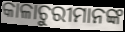
କାଳାଚୁରୀମାନଙ୍କ